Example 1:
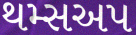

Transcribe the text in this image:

થમ્સઅપ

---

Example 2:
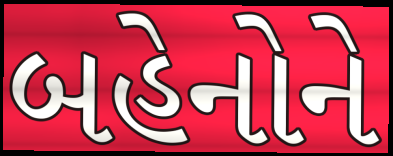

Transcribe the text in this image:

બહેનોને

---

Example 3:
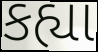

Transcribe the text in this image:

કહ્યા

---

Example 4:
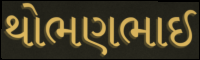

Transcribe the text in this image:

થોભણભાઈ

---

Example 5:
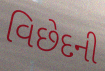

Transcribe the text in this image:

વિછેદની